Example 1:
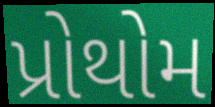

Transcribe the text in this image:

પ્રોથોમ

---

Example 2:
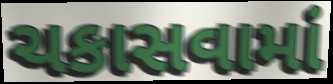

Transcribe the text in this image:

ચકાસવામાં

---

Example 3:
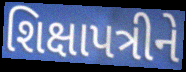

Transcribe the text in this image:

શિક્ષાપત્રીને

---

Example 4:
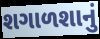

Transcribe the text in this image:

શગાળશાનું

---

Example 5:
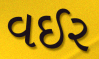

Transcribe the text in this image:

વઈર